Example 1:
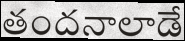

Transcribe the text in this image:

తందనాలాడే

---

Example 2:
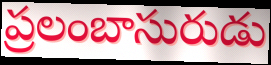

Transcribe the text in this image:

ప్రలంబాసురుడు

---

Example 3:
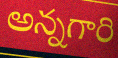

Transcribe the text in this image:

అన్నగారి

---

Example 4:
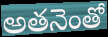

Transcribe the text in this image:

అతనెంతో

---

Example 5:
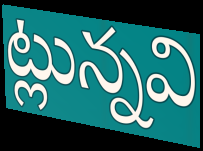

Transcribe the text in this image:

ట్లున్నవి